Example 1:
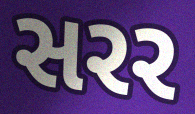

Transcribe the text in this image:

સરર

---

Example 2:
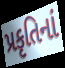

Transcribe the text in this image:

પ્રકૃતિનાં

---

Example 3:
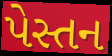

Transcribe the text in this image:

પેસ્તન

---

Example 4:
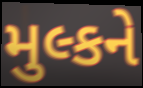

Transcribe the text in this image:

મુલ્કને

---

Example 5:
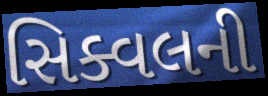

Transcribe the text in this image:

સિક્વલની